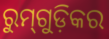
ରୁମ୍‌ଗୁଡ଼ିକର